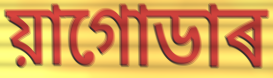
য়াগোডাৰ